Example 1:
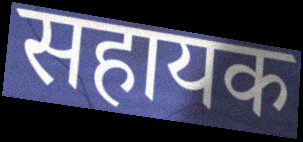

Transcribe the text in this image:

सहायक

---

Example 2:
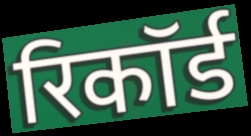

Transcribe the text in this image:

रिकॉर्ड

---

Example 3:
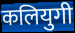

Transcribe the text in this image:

कलियुगी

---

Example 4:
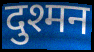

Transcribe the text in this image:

दुश्मन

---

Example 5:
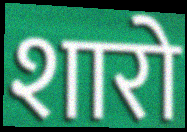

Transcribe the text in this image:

शारो